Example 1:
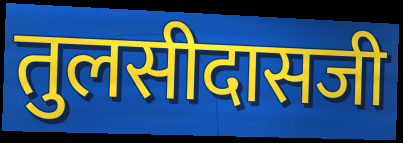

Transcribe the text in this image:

तुलसीदासजी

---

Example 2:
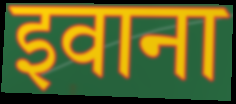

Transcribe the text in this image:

इवाना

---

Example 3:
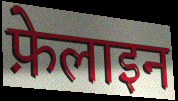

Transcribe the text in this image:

फ़ेलाइन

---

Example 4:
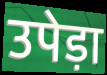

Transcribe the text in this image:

उपेड़ा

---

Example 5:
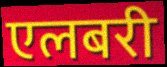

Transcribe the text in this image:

एलबरी